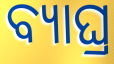
ବ୍ୟାଘ୍ର